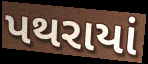
પથરાયાં